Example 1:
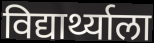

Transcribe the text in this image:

विद्यार्थ्याला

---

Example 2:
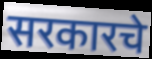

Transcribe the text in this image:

सरकारचे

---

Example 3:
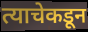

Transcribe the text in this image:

त्याचेकडून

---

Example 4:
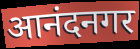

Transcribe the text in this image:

आनंदनगर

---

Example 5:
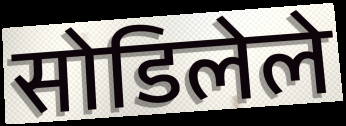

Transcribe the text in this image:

सोडिलेले